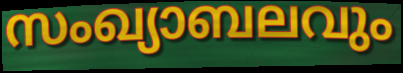
സംഖ്യാബലവും